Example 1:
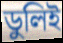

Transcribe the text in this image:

ডুলিই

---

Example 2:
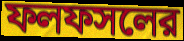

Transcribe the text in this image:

ফলফসলের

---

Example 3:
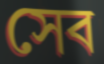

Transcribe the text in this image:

সেব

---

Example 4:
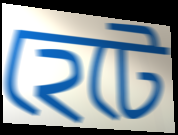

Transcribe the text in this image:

হেটে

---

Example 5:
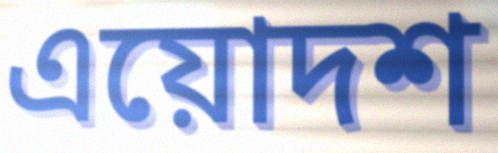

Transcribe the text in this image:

এয়োদশ